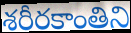
శరీరకాంతిని